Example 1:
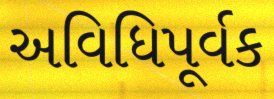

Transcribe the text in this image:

અવિધિપૂર્વક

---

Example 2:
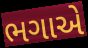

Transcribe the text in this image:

ભગાએ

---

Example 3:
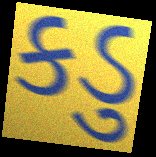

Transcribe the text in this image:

કડુ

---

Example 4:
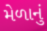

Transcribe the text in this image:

મેળાનું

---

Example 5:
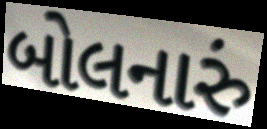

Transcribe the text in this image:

બોલનારું